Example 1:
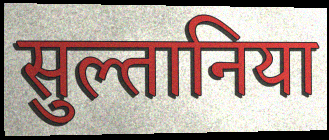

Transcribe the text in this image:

सुल्तानिया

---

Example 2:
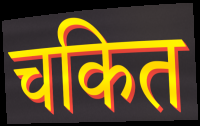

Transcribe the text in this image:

चकित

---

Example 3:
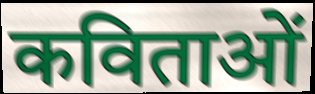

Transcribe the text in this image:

कविताओं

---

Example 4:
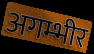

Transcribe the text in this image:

अगम्भीर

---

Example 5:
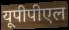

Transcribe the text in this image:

यूपीपीएल